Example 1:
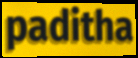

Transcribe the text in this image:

paditha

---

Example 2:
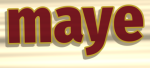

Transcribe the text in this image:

maye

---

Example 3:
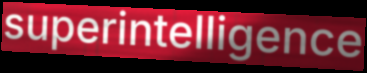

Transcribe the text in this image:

superintelligence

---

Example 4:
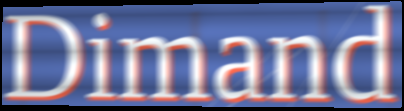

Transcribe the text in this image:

Dimand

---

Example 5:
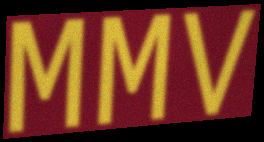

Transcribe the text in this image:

MMV